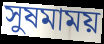
সুষমাময়